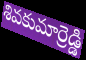
శివకుమార్రెడ్డి